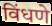
विंधणे